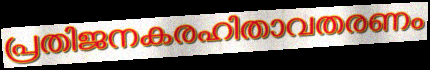
പ്രതിജനകരഹിതാവതരണം